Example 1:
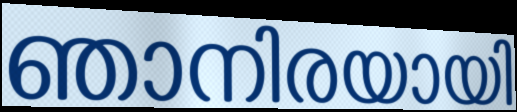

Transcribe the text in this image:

ഞാനിരയായി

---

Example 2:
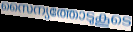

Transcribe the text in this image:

സൈന്യത്തോടുകൂടെ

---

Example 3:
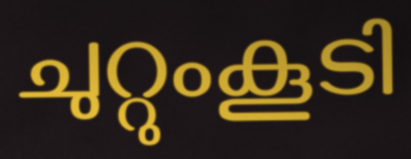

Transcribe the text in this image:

ചുറ്റുംകൂടി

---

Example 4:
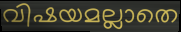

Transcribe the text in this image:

വിഷയമല്ലാതെ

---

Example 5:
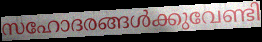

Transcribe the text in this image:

സഹോദരങ്ങൾക്കുവേണ്ടി